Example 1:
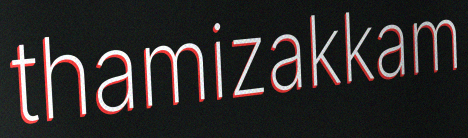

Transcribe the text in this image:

thamizakkam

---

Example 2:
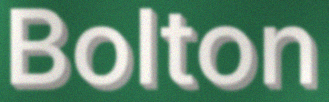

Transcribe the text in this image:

Bolton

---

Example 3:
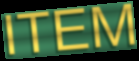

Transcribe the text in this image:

ITEM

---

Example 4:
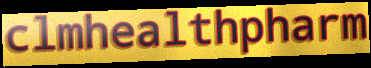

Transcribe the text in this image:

clmhealthpharm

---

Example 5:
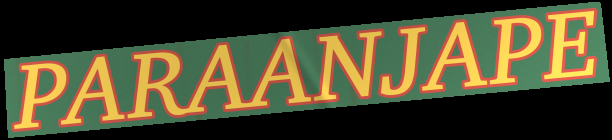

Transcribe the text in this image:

PARAANJAPE